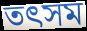
তৎসম